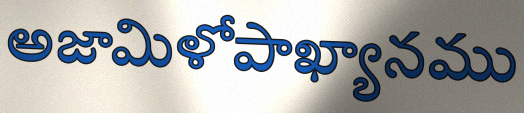
అజామిళోపాఖ్యానము